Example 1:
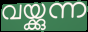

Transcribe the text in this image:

വയ്ക്കുന്ന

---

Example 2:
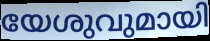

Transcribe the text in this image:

യേശുവുമായി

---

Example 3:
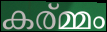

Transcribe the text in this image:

കര്മ്മം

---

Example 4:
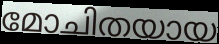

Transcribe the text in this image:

മോചിതയായ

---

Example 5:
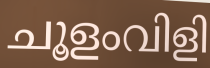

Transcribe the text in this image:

ചൂളംവിളി